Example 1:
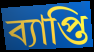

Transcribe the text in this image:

ব্যাপ্তি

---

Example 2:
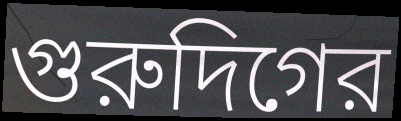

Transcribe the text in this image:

গুরুদিগের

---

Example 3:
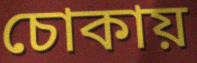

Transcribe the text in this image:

চোকায়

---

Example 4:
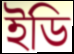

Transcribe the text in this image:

ইডি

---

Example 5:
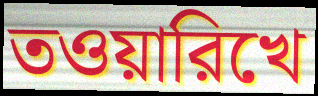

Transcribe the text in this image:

তওয়ারিখে